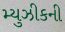
મ્યુઝીકની